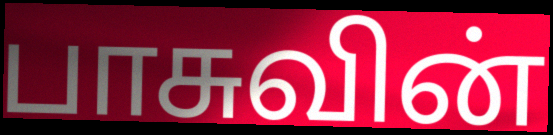
பாசுவின்